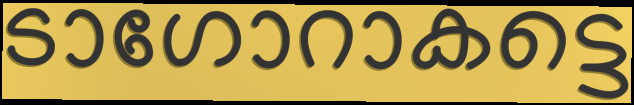
ടാഗോറാകട്ടെ